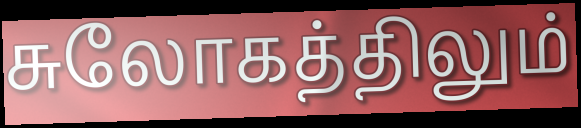
சுலோகத்திலும்